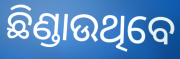
ଛିଣ୍ଡାଉଥିବେ